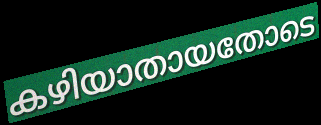
കഴിയാതായതോടെ